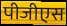
पीजीएस